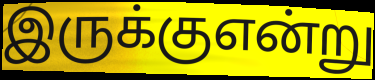
இருக்குஎன்று